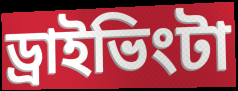
ড্রাইভিংটা